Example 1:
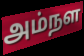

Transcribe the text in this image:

அம்நள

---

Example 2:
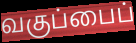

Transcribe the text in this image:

வகுப்பைப்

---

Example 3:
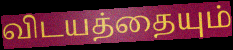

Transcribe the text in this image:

விடயத்தையும்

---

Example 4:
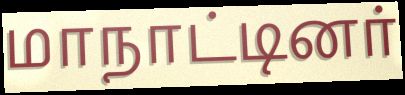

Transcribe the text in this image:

மாநாட்டினர்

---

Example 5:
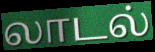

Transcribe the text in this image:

லாடல்